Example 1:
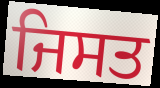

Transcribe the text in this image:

ਜਿਸਤ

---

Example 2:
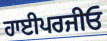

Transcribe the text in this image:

ਹਾਈਪਰਜੀਓ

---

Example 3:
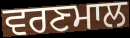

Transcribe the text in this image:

ਵਰਣਮਾਲ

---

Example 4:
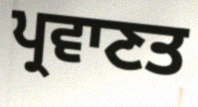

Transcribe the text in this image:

ਪ੍ਰਵਾਣਤ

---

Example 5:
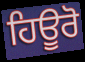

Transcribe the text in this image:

ਹਿਊਰੋ